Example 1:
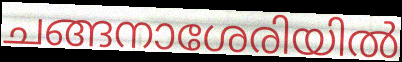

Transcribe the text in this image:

ചങ്ങനാശേരിയിൽ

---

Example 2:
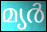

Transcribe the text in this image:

മ്യർ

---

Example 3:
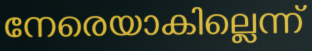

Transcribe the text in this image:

നേരെയാകില്ലെന്ന്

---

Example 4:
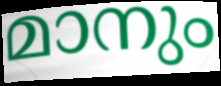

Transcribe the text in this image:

മാനും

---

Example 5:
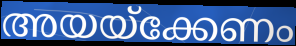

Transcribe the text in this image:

അയയ്ക്കേണം